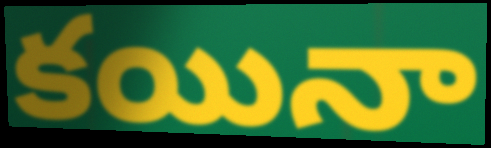
కయినా